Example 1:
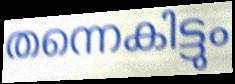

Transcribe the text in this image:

തന്നെകിട്ടും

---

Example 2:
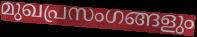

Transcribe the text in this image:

മുഖപ്രസംഗങ്ങളും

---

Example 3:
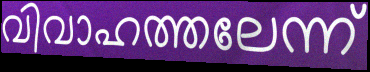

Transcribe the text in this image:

വിവാഹത്തലേന്ന്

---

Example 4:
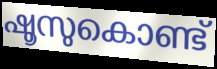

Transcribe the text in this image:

ഷൂസുകൊണ്ട്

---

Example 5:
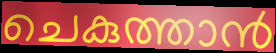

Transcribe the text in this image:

ചെകുത്താൻ